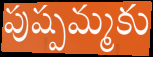
పుష్పమ్మకు